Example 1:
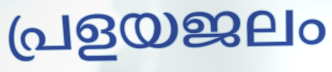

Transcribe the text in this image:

പ്രളയജലം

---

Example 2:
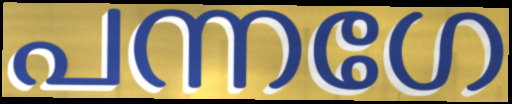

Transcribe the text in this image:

പന്നഗേ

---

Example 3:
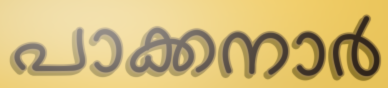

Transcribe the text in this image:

പാക്കനാർ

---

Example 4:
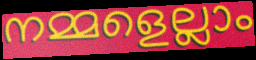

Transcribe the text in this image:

നമ്മളെല്ലാം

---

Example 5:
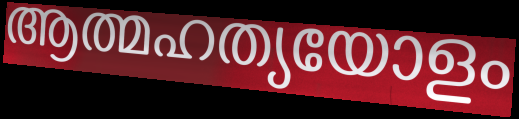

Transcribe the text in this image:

ആത്മഹത്യയോളം